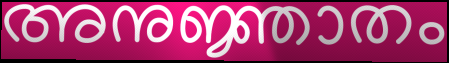
അനുജ്ഞാതം